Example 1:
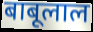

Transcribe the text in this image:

बाबूलाल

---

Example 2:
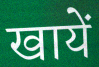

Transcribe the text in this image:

खायें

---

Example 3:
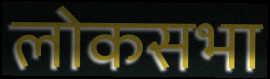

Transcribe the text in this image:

लोकसभा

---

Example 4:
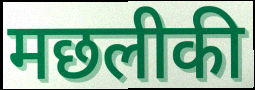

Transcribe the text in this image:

मछलीकी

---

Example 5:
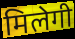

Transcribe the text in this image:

मिलेगी